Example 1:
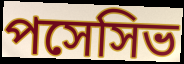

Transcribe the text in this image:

পসেসিভ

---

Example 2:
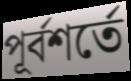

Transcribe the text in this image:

পূর্বশর্তে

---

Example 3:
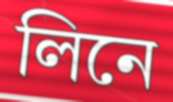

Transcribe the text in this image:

লিনে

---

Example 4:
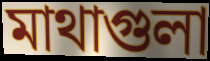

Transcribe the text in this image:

মাথাগুলা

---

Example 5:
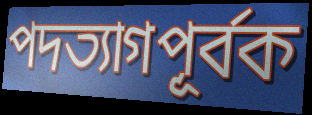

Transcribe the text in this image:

পদত্যাগপূর্বক